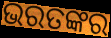
ଭରତଙ୍କର